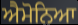
ਐਮੋਨਿਆ